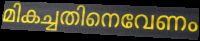
മികച്ചതിനെവേണം